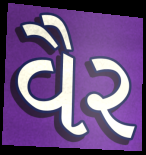
વૈર